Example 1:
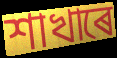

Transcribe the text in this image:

শাখাৰে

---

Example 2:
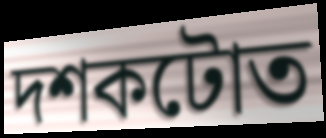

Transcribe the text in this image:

দশকটোত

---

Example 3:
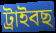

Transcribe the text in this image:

ট্ৰাইবছ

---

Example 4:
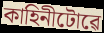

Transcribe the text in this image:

কাহিনীটোৱে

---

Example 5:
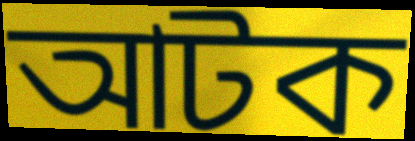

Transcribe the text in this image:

আটক